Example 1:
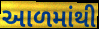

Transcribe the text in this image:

આળમાંથી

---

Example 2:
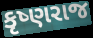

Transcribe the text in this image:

કૃષ્ણરાજ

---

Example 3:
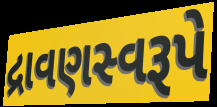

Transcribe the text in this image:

દ્રાવણસ્વરૂપે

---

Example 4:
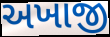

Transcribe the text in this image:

અખાજી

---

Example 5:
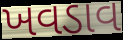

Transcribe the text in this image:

ખવડાવ